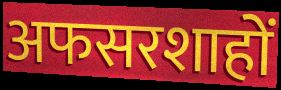
अफसरशाहों